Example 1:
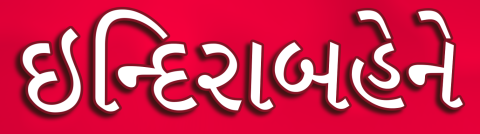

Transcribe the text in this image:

ઇન્દિરાબહેને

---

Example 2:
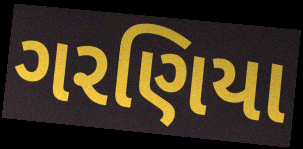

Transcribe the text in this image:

ગરણિયા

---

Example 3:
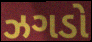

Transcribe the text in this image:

ઝગડો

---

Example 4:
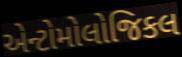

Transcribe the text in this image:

એન્ટોમોલોજિકલ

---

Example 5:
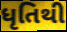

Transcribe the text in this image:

ધૃતિથી